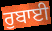
ਰੁਬਾਈ